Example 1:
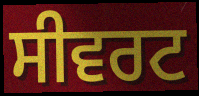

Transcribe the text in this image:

ਸੀਵਰਟ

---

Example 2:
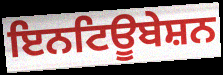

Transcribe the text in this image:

ਇਨਟਿਊਬੇਸ਼ਨ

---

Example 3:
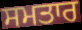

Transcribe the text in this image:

ਸਮਤਾਰ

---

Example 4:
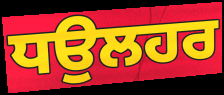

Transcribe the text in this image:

ਧਉਲਹਰ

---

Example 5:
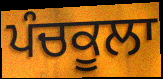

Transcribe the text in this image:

ਪੰਚਕੂਲਾ